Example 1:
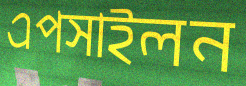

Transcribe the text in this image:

এপসাইলন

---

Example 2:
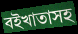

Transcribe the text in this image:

বইখাতাসহ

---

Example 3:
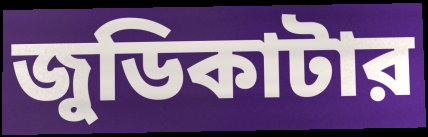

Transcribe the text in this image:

জুডিকাটার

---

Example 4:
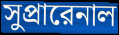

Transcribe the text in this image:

সুপ্রারেনাল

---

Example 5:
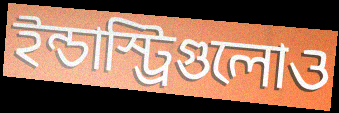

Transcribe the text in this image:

ইন্ডাস্ট্রিগুলোও